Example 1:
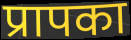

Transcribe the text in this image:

प्रापका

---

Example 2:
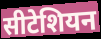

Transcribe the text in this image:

सीटेशियन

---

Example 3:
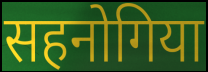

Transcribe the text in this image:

सहनोगिया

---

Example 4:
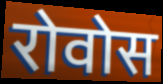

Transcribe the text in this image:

रोवोस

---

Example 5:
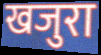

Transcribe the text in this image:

खजुरा